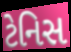
ટેનિસ